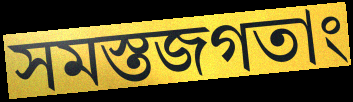
সমস্তজগতাং